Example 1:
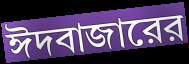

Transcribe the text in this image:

ঈদবাজারের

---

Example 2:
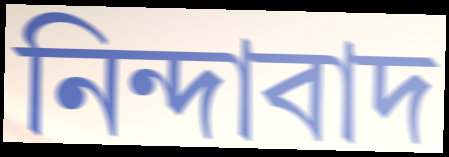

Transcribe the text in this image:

নিন্দাবাদ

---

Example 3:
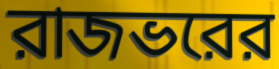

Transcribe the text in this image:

রাজভরের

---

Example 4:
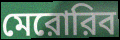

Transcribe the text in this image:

মেরোরিব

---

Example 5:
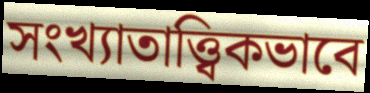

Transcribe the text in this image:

সংখ্যাতাত্ত্বিকভাবে